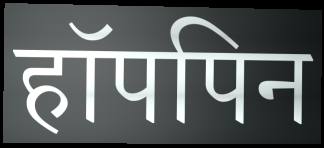
हॉपपिन